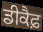
ਡੀਕੈਫ਼